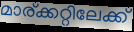
മാര്ക്കറ്റിലേക്ക്